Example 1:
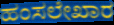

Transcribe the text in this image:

ಹಂಸಲೇಖಾರ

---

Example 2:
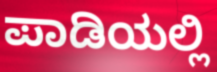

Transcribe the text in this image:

ಪಾಡಿಯಲ್ಲಿ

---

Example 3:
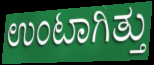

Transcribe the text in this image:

ಉಂಟಾಗಿತ್ತು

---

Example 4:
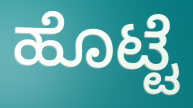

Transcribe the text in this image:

ಹೊಟ್ಟೆ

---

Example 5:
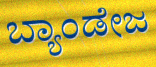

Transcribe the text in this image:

ಬ್ಯಾಂಡೇಜ